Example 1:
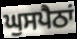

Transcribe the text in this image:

ਘੁਸਪੈਠਾਂ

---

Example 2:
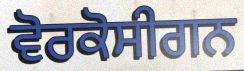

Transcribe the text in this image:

ਵੋਰਕੋਸੀਗਨ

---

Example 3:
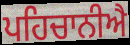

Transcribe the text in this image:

ਪਹਿਚਾਨੀਐ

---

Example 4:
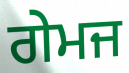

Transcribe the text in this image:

ਗੇਮਜ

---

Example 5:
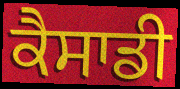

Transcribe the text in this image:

ਕੈਸਾਡੀ